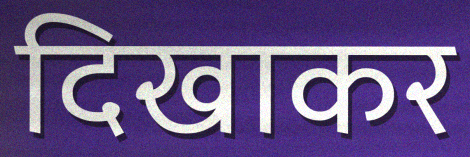
दिखाकर